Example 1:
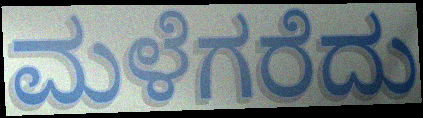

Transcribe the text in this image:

ಮಳೆಗರೆದು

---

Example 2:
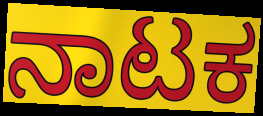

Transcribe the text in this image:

ನಾಟಕ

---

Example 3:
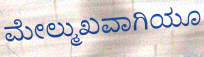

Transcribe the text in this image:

ಮೇಲ್ಮುಖವಾಗಿಯೂ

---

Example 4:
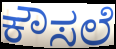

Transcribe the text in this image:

ಕೌಸಲೆ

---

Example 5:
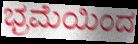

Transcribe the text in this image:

ಭ್ರಮೆಯಿಂದ